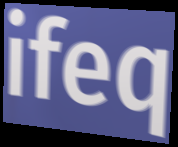
ifeq